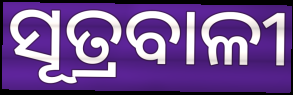
ସୂତ୍ରବାଳୀ